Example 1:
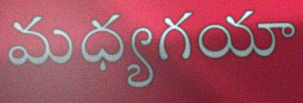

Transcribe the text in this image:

మధ్యగయా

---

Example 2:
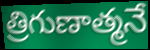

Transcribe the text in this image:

త్రిగుణాత్మనే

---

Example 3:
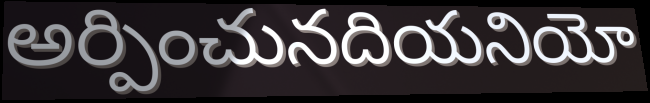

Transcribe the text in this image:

అర్పించునదియనియో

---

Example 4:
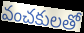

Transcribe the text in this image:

వంచకులతో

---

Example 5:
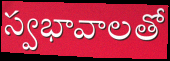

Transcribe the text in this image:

స్వభావాలతో